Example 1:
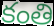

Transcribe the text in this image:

కంతి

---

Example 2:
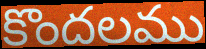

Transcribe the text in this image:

కొందలము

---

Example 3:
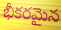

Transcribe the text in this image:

భీకరమైన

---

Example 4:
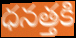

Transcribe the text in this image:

ధనత్తకి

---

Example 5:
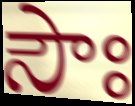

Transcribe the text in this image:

సౌః